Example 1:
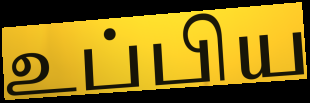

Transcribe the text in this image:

உப்பிய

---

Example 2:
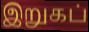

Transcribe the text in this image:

இறுகப்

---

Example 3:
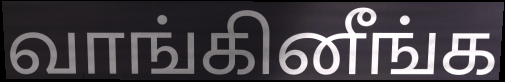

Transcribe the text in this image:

வாங்கினீங்க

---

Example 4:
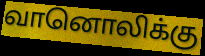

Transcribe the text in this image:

வானொலிக்கு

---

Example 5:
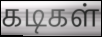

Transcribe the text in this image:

கடிகள்